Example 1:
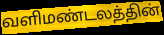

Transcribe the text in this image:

வளிமண்டலத்தின்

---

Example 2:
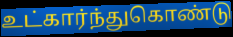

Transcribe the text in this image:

உட்கார்ந்துகொண்டு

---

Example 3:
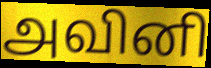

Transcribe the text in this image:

அவினி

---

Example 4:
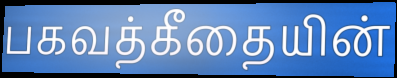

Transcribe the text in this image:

பகவத்கீதையின்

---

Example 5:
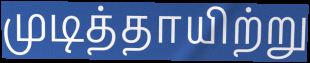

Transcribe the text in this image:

முடித்தாயிற்று